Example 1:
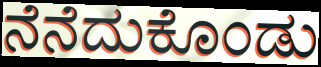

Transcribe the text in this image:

ನೆನೆದುಕೊಂಡು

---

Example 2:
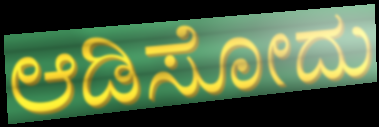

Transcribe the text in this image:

ಆಡಿಸೋದು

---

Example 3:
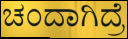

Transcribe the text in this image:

ಚಂದಾಗಿದ್ರೆ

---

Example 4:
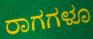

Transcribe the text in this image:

ರಾಗಗಳೂ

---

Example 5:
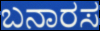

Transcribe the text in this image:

ಬನಾರಸ